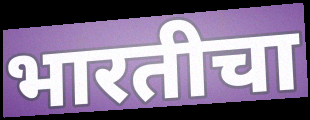
भारतीचा